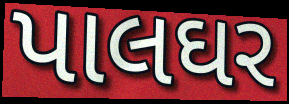
પાલઘર